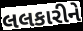
લલકારીને